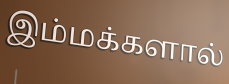
இம்மக்களால்